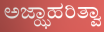
ಅಜ್ಝಾಹರಿತ್ವಾ